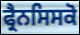
ਫ੍ਰੈਨਸਿਸਕੋ